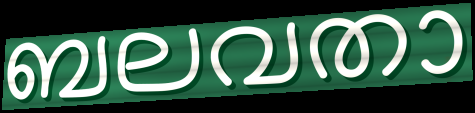
ബലവതാ